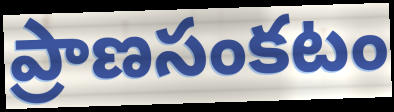
ప్రాణసంకటం